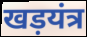
खड़यंत्र